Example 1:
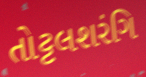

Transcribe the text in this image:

તોટ્ટલશરંગિ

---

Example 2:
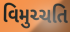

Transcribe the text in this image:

વિમુચ્ચતિ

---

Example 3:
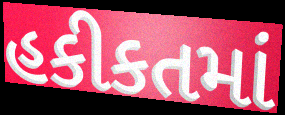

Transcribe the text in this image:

હકીકતમાં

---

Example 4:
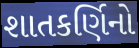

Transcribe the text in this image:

શાતકર્ણિનો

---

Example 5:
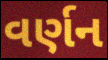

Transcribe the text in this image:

વર્ણન